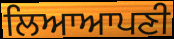
ਲਿਆਆਪਣੀ